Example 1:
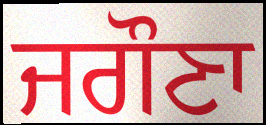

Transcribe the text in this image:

ਜਗੌਣਾ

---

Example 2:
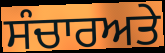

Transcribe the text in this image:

ਸੰਚਾਰਅਤੇ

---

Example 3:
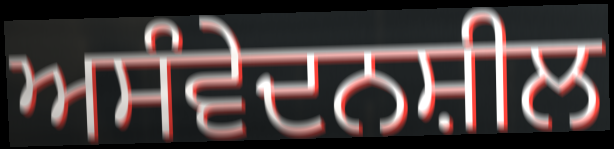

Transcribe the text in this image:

ਅਸੰਵੇਦਨਸ਼ੀਲ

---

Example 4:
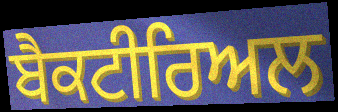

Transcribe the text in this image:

ਬੈਕਟੀਰਿਅਲ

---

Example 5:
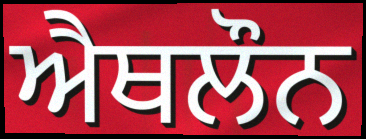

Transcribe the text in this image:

ਐਥਲੌਨ